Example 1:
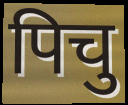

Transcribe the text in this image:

पिचु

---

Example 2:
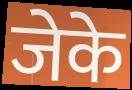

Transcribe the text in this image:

जेके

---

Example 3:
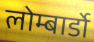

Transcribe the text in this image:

लोम्बार्डो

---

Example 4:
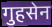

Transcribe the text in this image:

गुहसेन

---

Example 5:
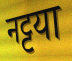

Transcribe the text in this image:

नट्टया